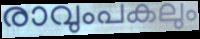
രാവുംപകലും